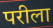
परीला